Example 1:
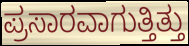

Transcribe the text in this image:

ಪ್ರಸಾರವಾಗುತ್ತಿತ್ತು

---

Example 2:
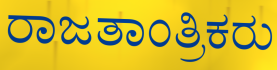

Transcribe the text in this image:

ರಾಜತಾಂತ್ರಿಕರು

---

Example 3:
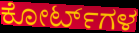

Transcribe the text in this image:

ಕೋರ್ಟ್‌ಗಳ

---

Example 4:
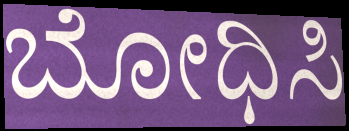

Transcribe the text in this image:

ಬೋಧಿಸಿ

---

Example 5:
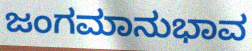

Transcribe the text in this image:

ಜಂಗಮಾನುಭಾವ